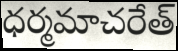
ధర్మమాచరేత్